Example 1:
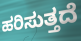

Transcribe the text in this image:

ಹರಿಸುತ್ತದೆ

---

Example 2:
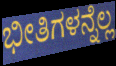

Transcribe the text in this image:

ಭೀತಿಗಳನ್ನೆಲ್ಲ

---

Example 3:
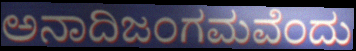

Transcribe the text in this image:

ಅನಾದಿಜಂಗಮವೆಂದು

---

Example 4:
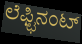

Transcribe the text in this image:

ಲೆಫ್ಟಿನಂಟ್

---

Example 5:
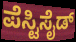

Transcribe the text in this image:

ಪೆಸ್ಟಿಸೈಡ್